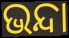
ଭନ୍ଦା